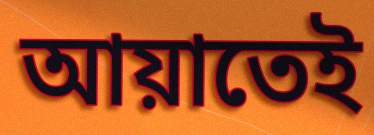
আয়াতেই